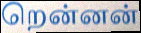
றென்னன்